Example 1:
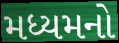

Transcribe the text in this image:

મધ્યમનો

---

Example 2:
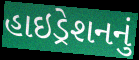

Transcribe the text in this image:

હાઇડ્રેશનનું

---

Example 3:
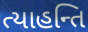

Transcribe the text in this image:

ત્યાહન્તિ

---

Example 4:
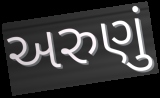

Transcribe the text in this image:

અરુણું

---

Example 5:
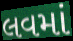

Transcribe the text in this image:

લવમાં